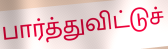
பார்த்துவிட்டுச்